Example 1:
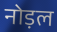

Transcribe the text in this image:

नोड़ल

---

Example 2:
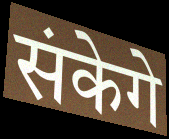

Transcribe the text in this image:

संकेगे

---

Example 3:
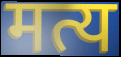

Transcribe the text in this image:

मत्य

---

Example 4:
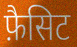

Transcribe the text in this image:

फ़ैसिट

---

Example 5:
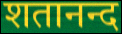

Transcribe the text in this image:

शतानन्द